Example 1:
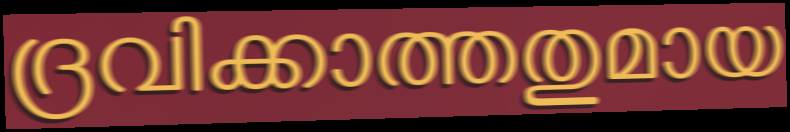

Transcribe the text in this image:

ദ്രവിക്കാത്തതുമായ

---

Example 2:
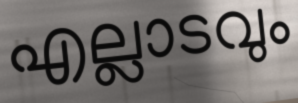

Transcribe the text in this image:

എല്ലാടവും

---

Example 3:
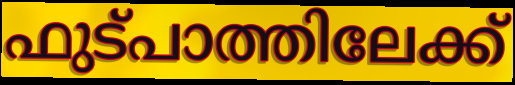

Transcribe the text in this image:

ഫുട്പാത്തിലേക്ക്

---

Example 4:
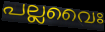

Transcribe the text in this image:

പല്ലവൈഃ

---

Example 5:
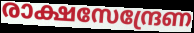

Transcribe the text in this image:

രാക്ഷസേന്ദ്രേണ